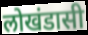
लोखंडासी